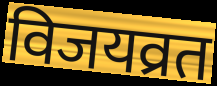
विजयव्रत